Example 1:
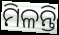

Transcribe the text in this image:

ମିଳନ୍ତି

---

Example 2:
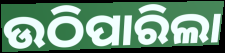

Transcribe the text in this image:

ଉଠିପାରିଲା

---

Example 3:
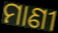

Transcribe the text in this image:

ମାଣୀ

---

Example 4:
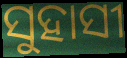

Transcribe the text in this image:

ସୁହାସୀ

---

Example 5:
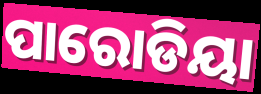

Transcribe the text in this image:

ପାରୋଡିୟା